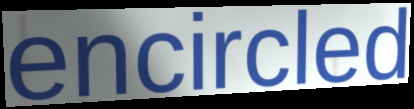
encircled